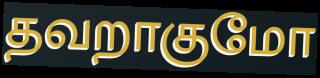
தவறாகுமோ